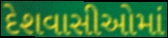
દેશવાસીઓમાં